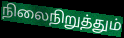
நிலைநிறுத்தும்